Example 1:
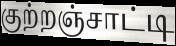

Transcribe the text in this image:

குற்றஞ்சாட்டி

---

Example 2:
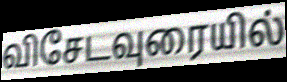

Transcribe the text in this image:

விசேடவுரையில்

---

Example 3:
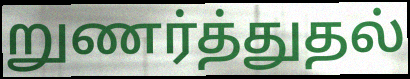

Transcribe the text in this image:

றுணர்த்துதல்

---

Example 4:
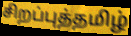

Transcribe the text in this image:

சிறப்புத்தமிழ்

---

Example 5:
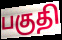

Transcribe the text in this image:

பகுதி